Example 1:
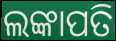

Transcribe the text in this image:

ଲଙ୍କାପତି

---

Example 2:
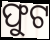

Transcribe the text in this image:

ଫୁଟ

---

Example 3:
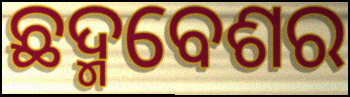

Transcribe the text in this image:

ଛଦ୍ମବେଶର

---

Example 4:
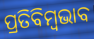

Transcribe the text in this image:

ପ୍ରତିବିମ୍ବଭାବ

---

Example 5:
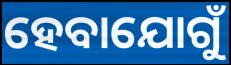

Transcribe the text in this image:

ହେବାଯୋଗୁଁ